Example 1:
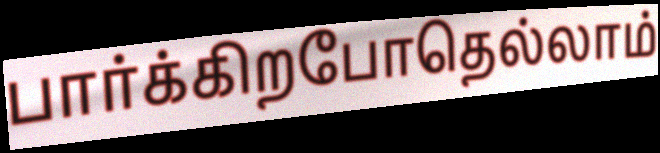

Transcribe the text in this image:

பார்க்கிறபோதெல்லாம்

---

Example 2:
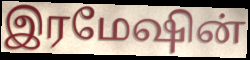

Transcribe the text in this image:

இரமேஷின்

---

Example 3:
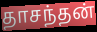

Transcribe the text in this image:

தாசந்தன்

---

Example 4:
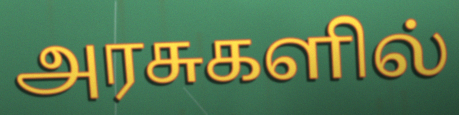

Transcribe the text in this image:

அரசுகளில்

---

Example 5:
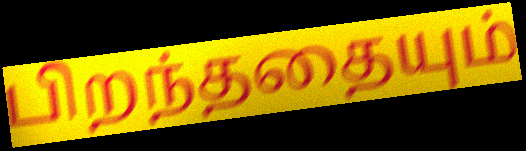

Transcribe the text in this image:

பிறந்ததையும்